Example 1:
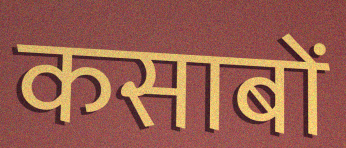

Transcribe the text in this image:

कसाबों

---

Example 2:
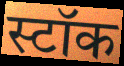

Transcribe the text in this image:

स्‍टॉक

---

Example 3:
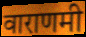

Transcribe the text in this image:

वाराणमी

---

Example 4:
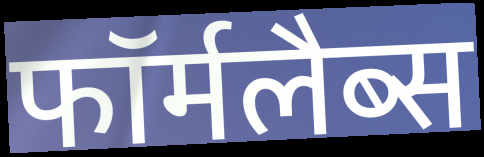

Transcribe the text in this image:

फॉर्मलैब्स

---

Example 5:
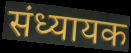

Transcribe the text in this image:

संध्यायक